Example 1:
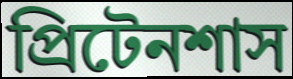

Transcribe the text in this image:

প্রিটেনশাস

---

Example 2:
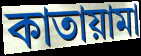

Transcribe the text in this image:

কাতায়ামা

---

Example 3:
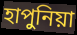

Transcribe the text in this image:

হাপুনিয়া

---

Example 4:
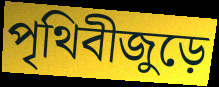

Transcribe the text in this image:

পৃথিবীজুড়ে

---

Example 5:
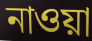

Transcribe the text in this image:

নাওয়া